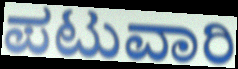
ಪಟುವಾರಿ